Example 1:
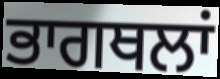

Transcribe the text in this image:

ਭਾਗਥਲਾਂ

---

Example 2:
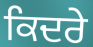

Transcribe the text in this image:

ਕਿਦਰੇ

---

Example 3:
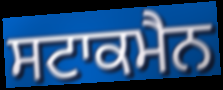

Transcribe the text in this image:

ਸਟਾਕਮੈਨ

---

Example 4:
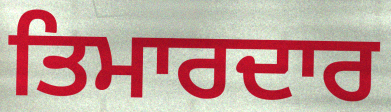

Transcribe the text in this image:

ਤਿਮਾਰਦਾਰ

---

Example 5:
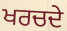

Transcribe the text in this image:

ਖਰਚਦੇ